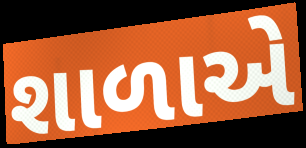
શાળાએે